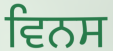
ਵਿਨਸ